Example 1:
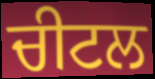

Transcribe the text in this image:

ਚੀਟਲ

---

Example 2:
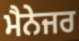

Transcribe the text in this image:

ਮੈਨੇਜਰ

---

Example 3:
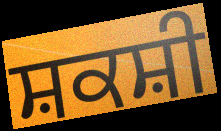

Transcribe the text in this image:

ਸ਼ਕਸ਼ੀ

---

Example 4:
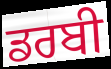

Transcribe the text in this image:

ਡਰਬੀ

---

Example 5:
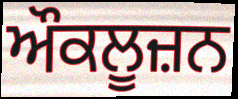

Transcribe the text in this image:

ਔਕਲੂਜ਼ਨ